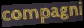
compagni